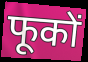
फूकों